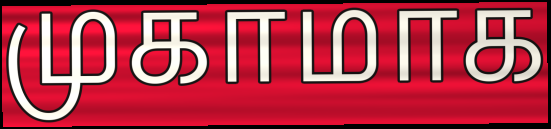
முகாமாக